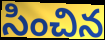
సించిన